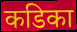
कडिका